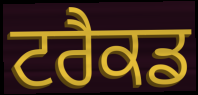
ਟਰੈਕਡ